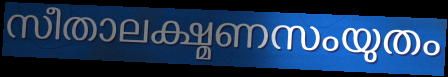
സീതാലക്ഷ്മണസംയുതം